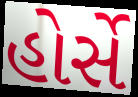
હોર્સે